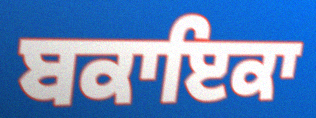
ਬਕਾਇਕਾ